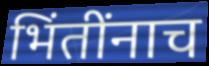
भिंतींनाच